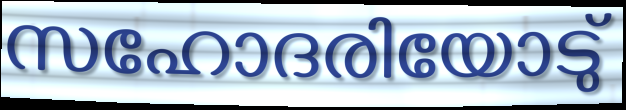
സഹോദരിയോടു്